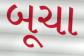
બૂચા